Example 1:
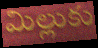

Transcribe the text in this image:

మిల్లుకు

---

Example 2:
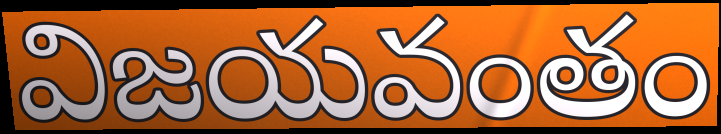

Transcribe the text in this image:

విజయవంతం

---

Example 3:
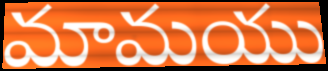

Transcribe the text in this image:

మామయు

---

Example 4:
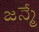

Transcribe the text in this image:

జన్మే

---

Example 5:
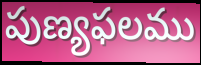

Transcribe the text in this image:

పుణ్యఫలము